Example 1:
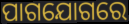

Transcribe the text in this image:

ପାଗଯୋଗରେ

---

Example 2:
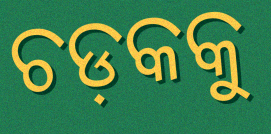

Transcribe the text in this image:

ଚଡ଼କକୁ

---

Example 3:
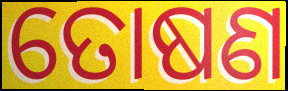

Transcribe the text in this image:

ତୋଷଣ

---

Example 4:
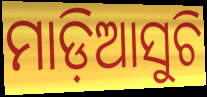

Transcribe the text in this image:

ମାଡ଼ିଆସୁଚି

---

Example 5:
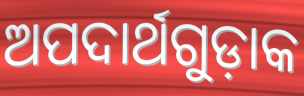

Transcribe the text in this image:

ଅପଦାର୍ଥଗୁଡ଼ାକ